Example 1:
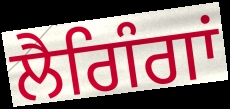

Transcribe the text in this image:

ਲੈਗਿੰਗਾਂ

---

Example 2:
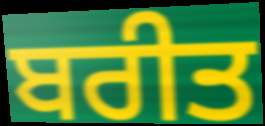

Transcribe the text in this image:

ਬਰੀਤ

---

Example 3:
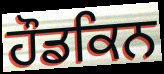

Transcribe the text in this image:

ਹੌਡਕਿਨ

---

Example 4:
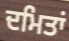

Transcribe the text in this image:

ਦਮਿਤਾਂ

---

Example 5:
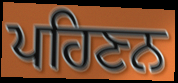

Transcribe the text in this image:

ਪਹਿਣਨ